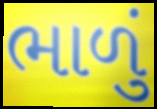
ભાળું